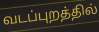
வடப்புறத்தில்